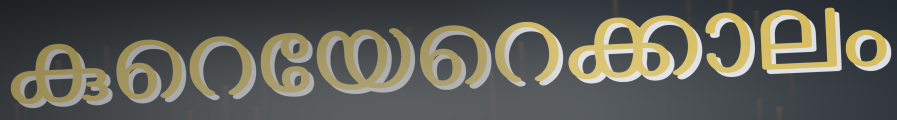
കുറെയേറെക്കാലം